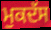
ਮੁਕਦੱਸ